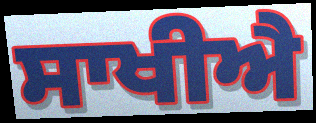
ਸਾਖੀਐ